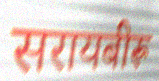
सरायबीरू